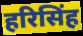
हरिसिंह